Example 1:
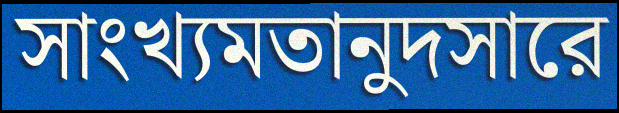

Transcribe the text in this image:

সাংখ্যমতানুদসারে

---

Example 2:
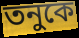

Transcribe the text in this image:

তনুকে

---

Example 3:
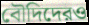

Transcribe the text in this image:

বৌদিদেরও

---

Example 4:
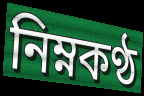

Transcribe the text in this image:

নিম্নকণ্ঠ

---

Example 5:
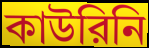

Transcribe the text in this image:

কাউরিনি